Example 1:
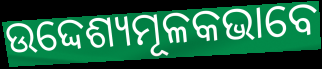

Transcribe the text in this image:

ଉଦ୍ଦେଶ୍ୟମୂଳକଭାବେ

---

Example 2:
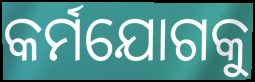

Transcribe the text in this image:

କର୍ମଯୋଗକୁ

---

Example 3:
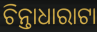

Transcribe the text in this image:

ଚିନ୍ତାଧାରାଟା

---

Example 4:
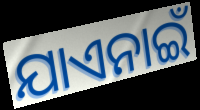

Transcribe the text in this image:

ଯାଏନାଇଁ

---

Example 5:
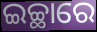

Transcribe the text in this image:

ଇଚ୍ଛାରେ